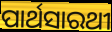
ପାର୍ଥସାରଥୀ